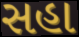
સહા